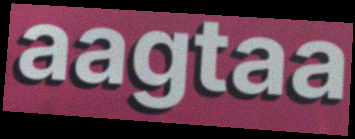
aagtaa